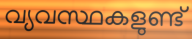
വ്യവസ്ഥകളുണ്ട്